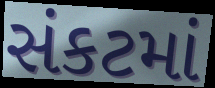
સંકટમાં